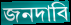
জনদাবি